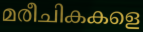
മരീചികകളെ